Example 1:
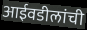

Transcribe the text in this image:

आईवडीलांची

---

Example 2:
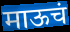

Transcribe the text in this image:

माऊचं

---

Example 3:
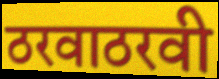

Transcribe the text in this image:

ठरवाठरवी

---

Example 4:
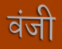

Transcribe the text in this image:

वंजी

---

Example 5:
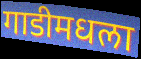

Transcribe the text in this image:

गाडीमधला